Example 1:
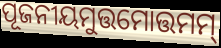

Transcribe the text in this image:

ପୂଜନୀୟମୁତ୍ତମୋତ୍ତମମ୍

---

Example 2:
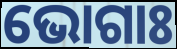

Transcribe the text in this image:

ଭୋଗାଃ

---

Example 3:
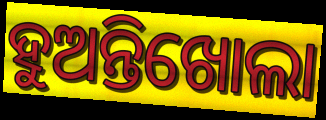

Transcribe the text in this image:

ହୁଅନ୍ତିଖୋଲା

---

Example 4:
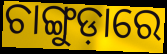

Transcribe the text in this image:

ଚାଙ୍ଗୁଡ଼ାରେ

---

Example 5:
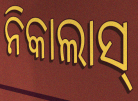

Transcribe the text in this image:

ନିକାଲାସ୍